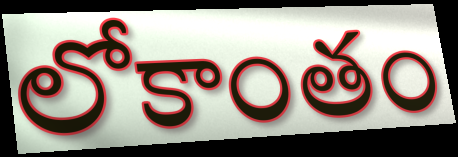
లోకాంతం